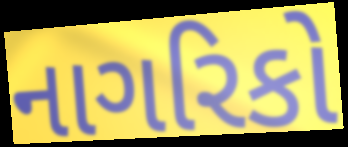
નાગરિકો